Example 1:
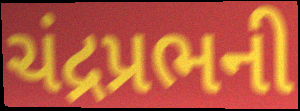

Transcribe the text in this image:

ચંદ્રપ્રભની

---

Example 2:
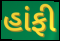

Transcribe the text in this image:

હાંફી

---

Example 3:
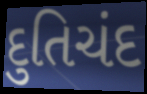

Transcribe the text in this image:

દુતિચંદ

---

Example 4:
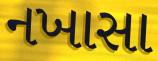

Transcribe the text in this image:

નખાસા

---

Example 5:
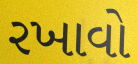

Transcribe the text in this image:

રખાવો